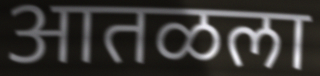
आतळला